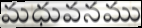
మధువనము